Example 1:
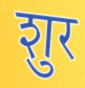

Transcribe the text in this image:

शुर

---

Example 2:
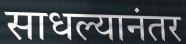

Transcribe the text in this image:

साधल्यानंतर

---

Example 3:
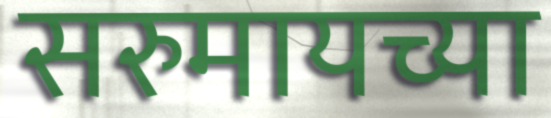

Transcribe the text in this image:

सरुमायच्या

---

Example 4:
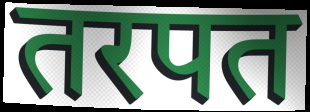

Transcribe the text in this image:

तरपत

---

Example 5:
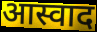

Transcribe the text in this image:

आस्वाद